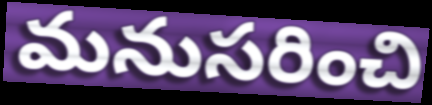
మనుసరించి